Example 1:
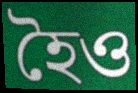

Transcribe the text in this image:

হৈও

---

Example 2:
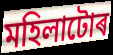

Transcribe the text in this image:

মহিলাটোৰ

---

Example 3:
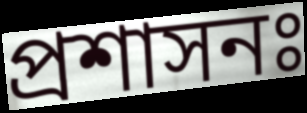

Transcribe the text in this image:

প্ৰশাসনঃ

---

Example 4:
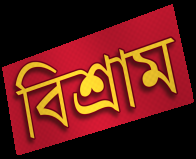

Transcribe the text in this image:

বিশ্ৰাম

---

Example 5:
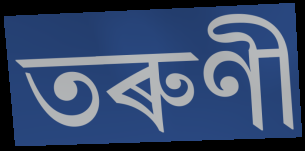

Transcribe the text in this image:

তৰুণী